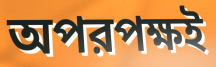
অপরপক্ষই